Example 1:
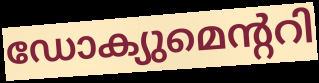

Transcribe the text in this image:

ഡോക്യുമെന്ററി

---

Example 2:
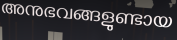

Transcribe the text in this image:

അനുഭവങ്ങളുണ്ടായ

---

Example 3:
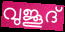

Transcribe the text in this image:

വുജൂദ്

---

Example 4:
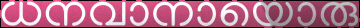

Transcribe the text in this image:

ധനവാനായൊരു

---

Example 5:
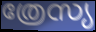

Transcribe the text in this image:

ത്രേസ്യ